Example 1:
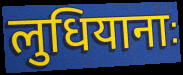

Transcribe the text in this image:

लुधियानाः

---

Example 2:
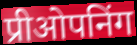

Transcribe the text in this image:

प्रीओपनिंग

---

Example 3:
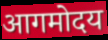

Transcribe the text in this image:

आगमोदय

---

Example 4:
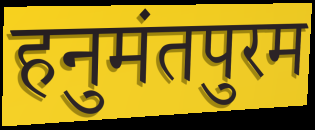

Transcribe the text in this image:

हनुमंतपुरम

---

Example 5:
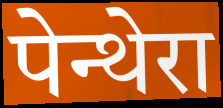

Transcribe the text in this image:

पेन्थेरा